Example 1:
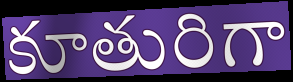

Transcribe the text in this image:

కూతురిగా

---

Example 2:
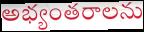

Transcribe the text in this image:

అభ్యంతరాలను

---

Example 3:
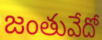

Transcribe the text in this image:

జంతువేదో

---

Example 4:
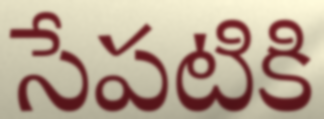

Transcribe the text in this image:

సేపటికి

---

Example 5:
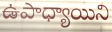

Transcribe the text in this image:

ఉపాధ్యాయిని